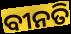
ବୀନତି